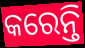
କରେନ୍ତି